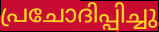
പ്രചോദിപ്പിച്ചു